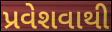
પ્રવેશવાથી